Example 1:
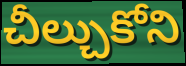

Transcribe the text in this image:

చీల్చుకోని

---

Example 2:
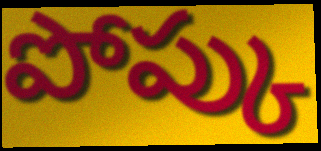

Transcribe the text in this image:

పోప్కు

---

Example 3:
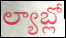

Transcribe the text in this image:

ల్యాబ్లో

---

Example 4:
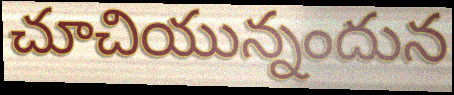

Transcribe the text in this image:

చూచియున్నందున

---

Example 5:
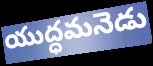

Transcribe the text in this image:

యుద్ధమనెడు